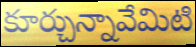
కూర్చున్నావేమిటి